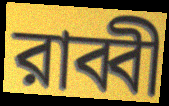
রাব্বী